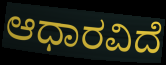
ಆಧಾರವಿದೆ